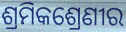
ଶ୍ରମିକଶ୍ରେଣୀର